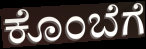
ಕೊಂಬೆಗೆ